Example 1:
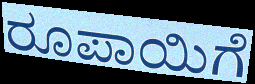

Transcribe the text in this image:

ರೂಪಾಯಿಗೆ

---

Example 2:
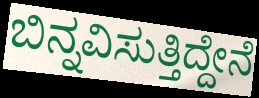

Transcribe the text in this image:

ಬಿನ್ನವಿಸುತ್ತಿದ್ದೇನೆ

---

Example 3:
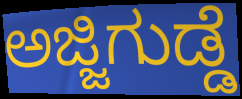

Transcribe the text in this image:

ಅಜ್ಜಿಗುಡ್ಡೆ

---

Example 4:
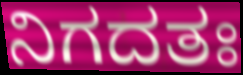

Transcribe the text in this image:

ನಿಗದತಃ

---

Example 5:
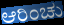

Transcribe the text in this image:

ಆರಿಂಚು